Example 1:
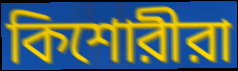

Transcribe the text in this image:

কিশোরীরা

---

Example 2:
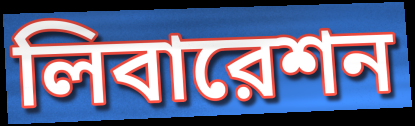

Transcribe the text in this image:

লিবারেশন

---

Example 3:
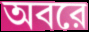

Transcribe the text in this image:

অবরে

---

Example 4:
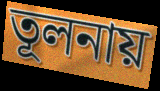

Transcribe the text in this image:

তূলনায়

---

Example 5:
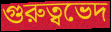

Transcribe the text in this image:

গুরুত্বভেদ